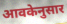
आवकेनुसार